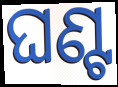
ଘଣ୍ଟ